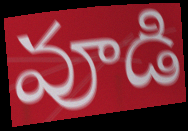
వూడి